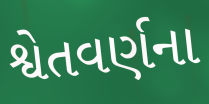
શ્વેતવર્ણના